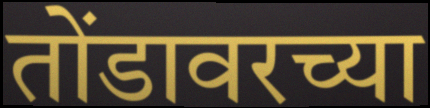
तोंडावरच्या